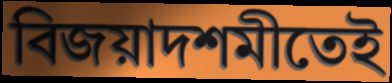
বিজয়াদশমীতেই